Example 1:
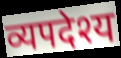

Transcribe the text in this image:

व्यपदेश्य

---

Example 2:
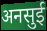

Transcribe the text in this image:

अनसुई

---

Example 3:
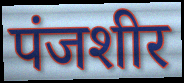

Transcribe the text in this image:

पंजशीर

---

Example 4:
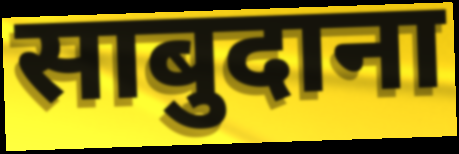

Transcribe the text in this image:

साबुदाना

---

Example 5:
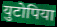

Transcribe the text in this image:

युटोपिया